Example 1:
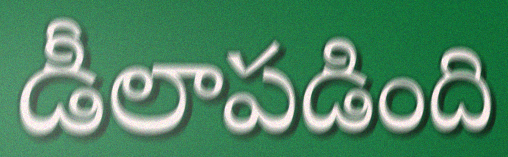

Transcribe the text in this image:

డీలాపడింది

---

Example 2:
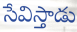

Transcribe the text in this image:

సేవిస్తాడు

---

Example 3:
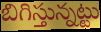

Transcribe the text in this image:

బిగిస్తున్నట్టు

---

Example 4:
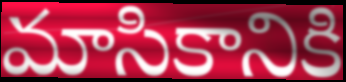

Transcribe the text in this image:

మాసికానికి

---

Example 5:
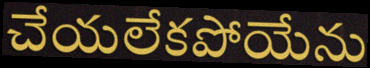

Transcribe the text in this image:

చేయలేకపోయేను